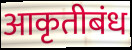
आकृतीबंध